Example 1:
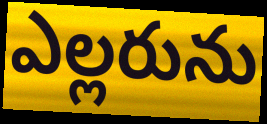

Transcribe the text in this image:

ఎల్లరును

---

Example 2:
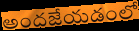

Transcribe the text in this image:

అందజేయడంలో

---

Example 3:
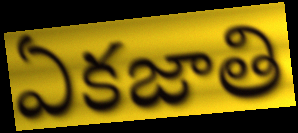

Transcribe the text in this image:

ఏకజాతి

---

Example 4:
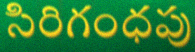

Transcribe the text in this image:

సిరిగంధపు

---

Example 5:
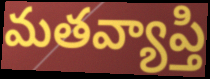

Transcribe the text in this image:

మతవ్యాప్తి